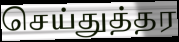
செய்துத்தர